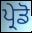
ਪ੍ਰੇਡੋ